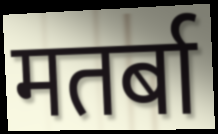
मतर्बा